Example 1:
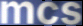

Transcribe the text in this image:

mcs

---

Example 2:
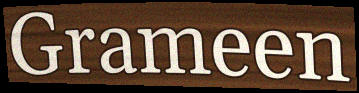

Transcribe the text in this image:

Grameen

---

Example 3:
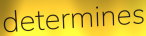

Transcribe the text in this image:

determines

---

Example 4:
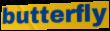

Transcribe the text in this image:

butterfly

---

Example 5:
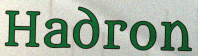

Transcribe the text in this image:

Hadron